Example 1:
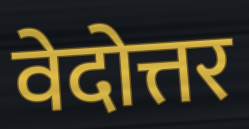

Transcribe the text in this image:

वेदोत्तर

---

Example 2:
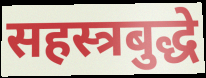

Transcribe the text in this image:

सहस्त्रबुद्धे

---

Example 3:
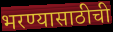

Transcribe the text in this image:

भरण्यासाठीची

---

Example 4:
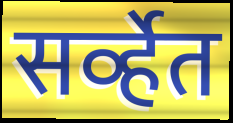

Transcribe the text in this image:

सर्व्हेत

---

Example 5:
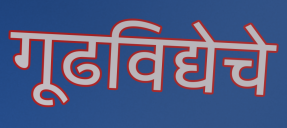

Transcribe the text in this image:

गूढविद्येचे